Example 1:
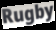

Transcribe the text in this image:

Rugby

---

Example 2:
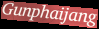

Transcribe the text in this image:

Gunphaijang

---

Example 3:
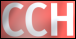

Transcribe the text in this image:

CCH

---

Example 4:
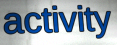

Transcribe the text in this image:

activity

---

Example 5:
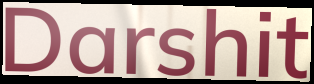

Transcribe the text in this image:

Darshit